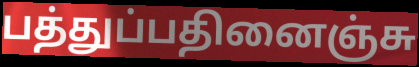
பத்துப்பதினைஞ்சு